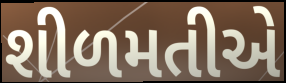
શીળમતીએ